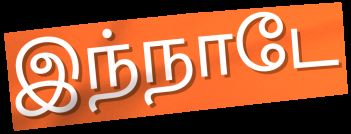
இந்நாடே